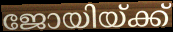
ജോയിയ്ക്ക്